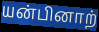
யன்பினாற்